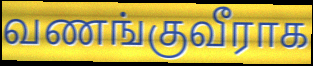
வணங்குவீராக